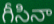
గీసినా